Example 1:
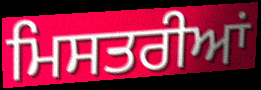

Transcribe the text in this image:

ਮਿਸਤਰੀਆਂ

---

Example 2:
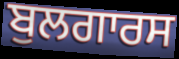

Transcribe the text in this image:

ਬੁਲਗਾਰਸ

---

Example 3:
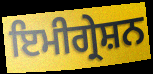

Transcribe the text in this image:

ਇਮੀਗ੍ਰੇਸ਼ਨ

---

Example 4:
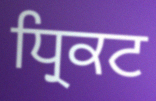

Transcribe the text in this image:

ਧ੍ਰਿਕਟ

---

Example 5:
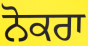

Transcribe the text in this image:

ਨੋਕਰਾ